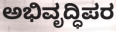
ಅಭಿವೃದ್ಧಿಪರ